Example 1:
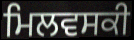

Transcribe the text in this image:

ਮਿਲਵਸਕੀ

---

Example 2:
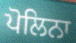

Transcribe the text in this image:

ਪੋਲਿਨਾ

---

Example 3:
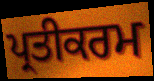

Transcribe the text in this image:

ਪ੍ਰਤੀਕਰਮ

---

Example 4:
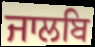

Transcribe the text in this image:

ਜਾਲਬਿ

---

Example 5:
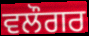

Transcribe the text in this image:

ਵਲੌਗਰ